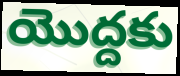
యొద్దకు